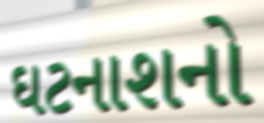
ઘટનાશનો